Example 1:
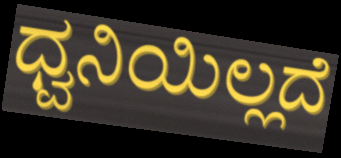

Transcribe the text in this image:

ಧ್ವನಿಯಿಲ್ಲದೆ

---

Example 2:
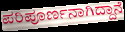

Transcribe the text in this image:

ಪರಿಪೂರ್ಣನಾಗಿದ್ದಾನೆ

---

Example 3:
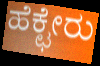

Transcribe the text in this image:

ಹೆಕ್ಟೇರು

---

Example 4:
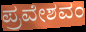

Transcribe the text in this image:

ಪ್ರವೇಶವಂ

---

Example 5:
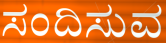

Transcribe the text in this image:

ಸಂದಿಸುವ